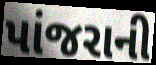
પાંજરાની